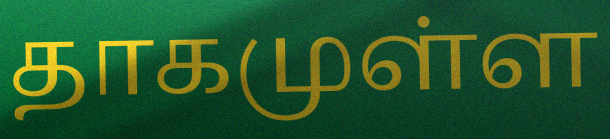
தாகமுள்ள